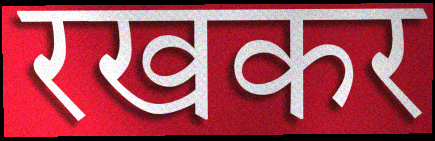
रखकर